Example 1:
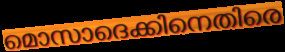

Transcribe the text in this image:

മൊസാദെക്കിനെതിരെ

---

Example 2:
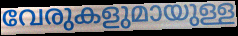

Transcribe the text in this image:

വേരുകളുമായുള്ള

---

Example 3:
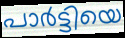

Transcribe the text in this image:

പാർട്ടിയെ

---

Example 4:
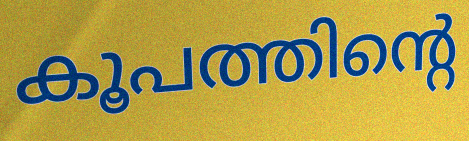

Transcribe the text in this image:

കൂപത്തിന്റെ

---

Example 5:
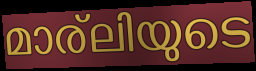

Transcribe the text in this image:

മാര്ലിയുടെ